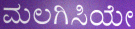
ಮಲಗಿಸಿಯೇ